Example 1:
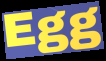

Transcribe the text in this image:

Egg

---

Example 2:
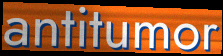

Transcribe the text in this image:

antitumor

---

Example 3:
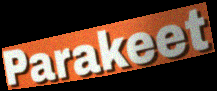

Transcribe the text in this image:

Parakeet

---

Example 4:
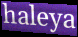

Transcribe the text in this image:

haleya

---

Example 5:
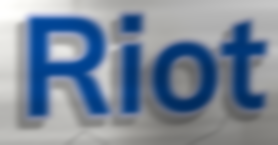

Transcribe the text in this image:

Riot